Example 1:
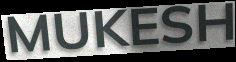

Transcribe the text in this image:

MUKESH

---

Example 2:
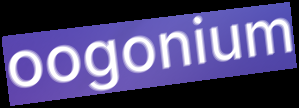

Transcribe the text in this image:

oogonium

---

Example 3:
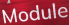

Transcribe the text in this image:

Module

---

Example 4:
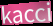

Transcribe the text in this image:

kacci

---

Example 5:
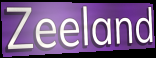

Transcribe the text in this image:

Zeeland